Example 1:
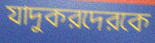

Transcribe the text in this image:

যাদুকরদেরকে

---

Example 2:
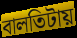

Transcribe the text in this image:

বালতিটায়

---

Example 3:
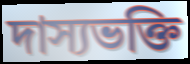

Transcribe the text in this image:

দাস্যভক্তি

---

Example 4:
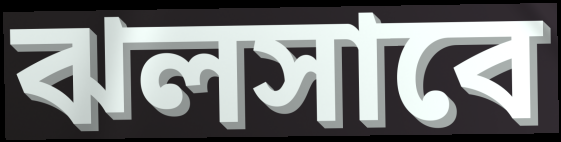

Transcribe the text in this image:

ঝলসাবে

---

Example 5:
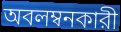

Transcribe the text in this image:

অবলম্বনকারী